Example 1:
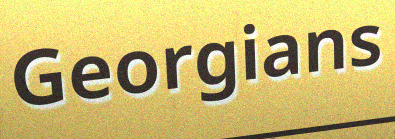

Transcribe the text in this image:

Georgians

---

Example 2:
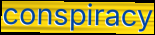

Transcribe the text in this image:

conspiracy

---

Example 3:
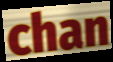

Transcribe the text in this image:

chan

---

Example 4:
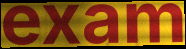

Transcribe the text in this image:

exam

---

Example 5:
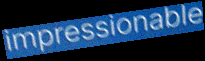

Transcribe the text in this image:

impressionable